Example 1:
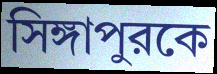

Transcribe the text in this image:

সিঙ্গাপুরকে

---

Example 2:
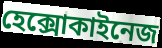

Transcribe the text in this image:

হেক্সোকাইনেজ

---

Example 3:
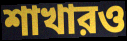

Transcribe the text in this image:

শাখারও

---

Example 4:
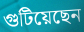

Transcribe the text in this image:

গুটিয়েছেন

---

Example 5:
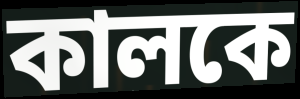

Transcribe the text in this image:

কালকে